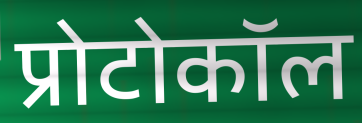
प्रोटोकॉल